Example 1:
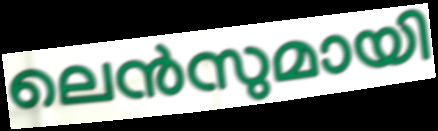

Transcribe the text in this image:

ലെൻസുമായി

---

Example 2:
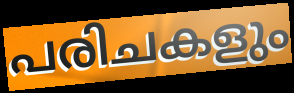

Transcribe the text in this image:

പരിചകളും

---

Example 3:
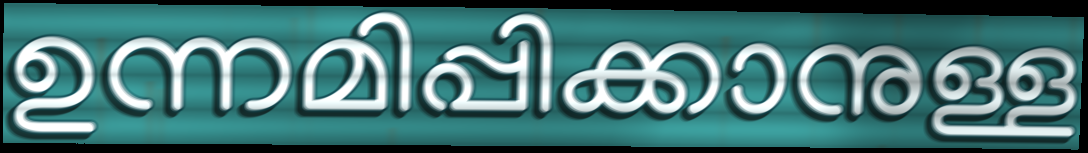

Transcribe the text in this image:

ഉന്നമിപ്പിക്കാനുള്ള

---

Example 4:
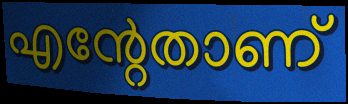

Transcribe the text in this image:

എന്റേതാണ്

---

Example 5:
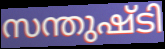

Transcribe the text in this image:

സന്തുഷ്ടി